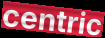
centric